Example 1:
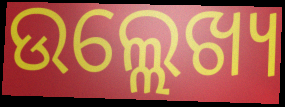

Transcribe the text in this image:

ଉଲ୍ଲେଖ୍ୟ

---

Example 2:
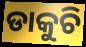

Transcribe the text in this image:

ଡାକୁଚି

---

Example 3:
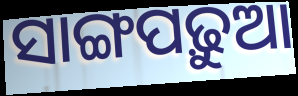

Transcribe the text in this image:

ସାଙ୍ଗପଢ଼ୁଆ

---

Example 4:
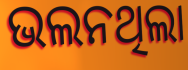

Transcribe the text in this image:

ଭଲନଥିଲା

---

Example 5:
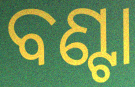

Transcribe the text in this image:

ବଣ୍ଟା